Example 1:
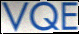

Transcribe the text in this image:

VQE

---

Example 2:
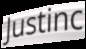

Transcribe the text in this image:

Justinc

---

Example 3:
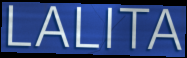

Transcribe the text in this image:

LALITA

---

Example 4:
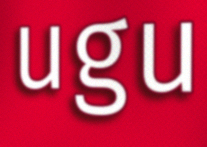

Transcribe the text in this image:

ugu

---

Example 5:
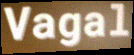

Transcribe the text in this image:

Vagal